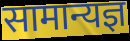
सामान्यज्ञ